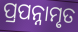
ପ୍ରପନ୍ନାମୃତ